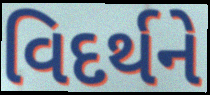
વિદર્થને